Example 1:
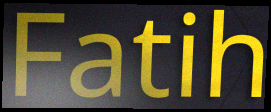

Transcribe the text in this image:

Fatih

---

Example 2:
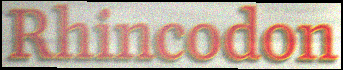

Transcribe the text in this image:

Rhincodon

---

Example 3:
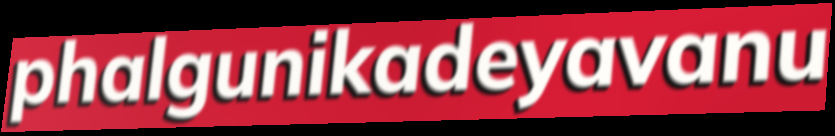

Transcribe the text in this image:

phalgunikadeyavanu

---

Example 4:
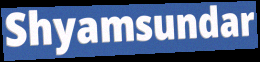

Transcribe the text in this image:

Shyamsundar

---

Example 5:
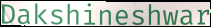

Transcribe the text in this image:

Dakshineshwar